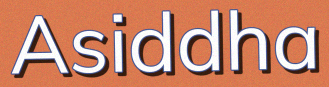
Asiddha